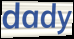
dady